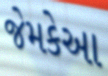
જેમકેઆ